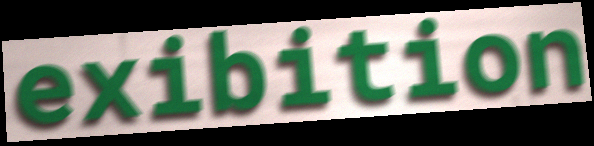
exibition